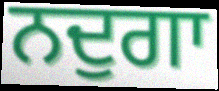
ਨਦੁਗਾ